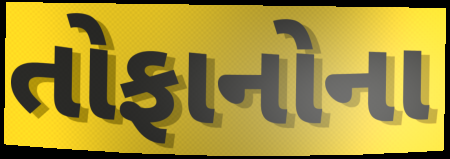
તોફાનોના